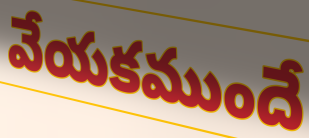
వేయకముందే